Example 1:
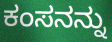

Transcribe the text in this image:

ಕಂಸನನ್ನು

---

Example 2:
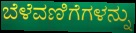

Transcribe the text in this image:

ಬೆಳೆವಣಿಗೆಗಳನ್ನು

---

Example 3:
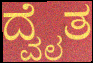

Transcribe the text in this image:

ದ್ವೈತ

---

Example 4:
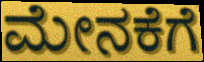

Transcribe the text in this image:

ಮೇನಕೆಗೆ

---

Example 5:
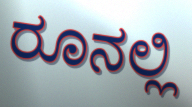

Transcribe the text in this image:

ರೂನಲ್ಲಿ